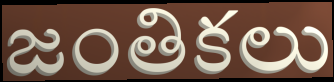
జంతికలు